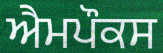
ਐਮਪੌਕਸ